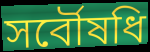
সর্বৌষধি